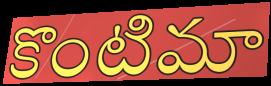
కొంటిమా